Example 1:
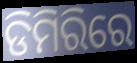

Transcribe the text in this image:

ଡିମିରିରେ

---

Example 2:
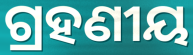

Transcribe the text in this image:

ଗ୍ରହଣୀୟ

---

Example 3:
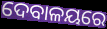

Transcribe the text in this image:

ଦେବାଳୟରେ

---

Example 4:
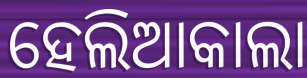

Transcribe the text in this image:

ହେଲିଆକାଲା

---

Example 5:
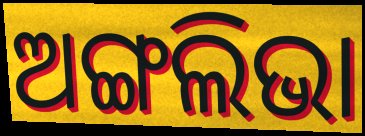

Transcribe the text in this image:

ଅଙ୍ଗଲିଭା